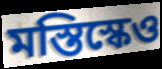
মস্তিস্কেও